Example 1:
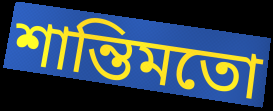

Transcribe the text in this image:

শান্তিমতো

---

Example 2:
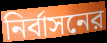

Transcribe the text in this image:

নির্বাসনের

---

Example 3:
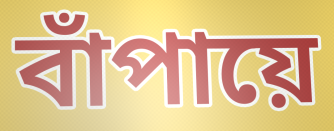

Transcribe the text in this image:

বাঁপায়ে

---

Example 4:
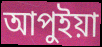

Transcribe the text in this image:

আপুইয়া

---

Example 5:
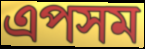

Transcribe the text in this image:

এপসম